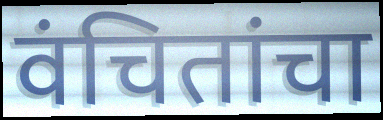
वंचितांचा